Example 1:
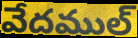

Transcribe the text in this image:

వేదముల్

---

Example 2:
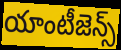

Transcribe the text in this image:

యాంటీజెన్స్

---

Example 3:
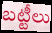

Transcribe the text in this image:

బట్టీలు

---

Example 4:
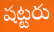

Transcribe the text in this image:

షట్టరు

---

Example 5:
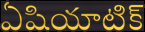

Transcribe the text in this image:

ఏషియాటిక్